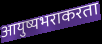
आयुष्यभराकरता